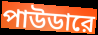
পাউডারে